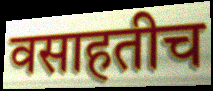
वसाहतीच